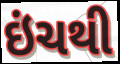
ઇંચથી